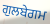
ਗੁਲਬੇਗਮ